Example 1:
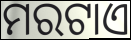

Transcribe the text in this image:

ମରଟାଏ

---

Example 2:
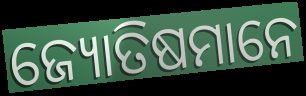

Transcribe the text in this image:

ଜ୍ୟୋତିଷମାନେ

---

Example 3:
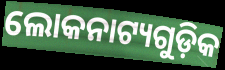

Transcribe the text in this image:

ଲୋକନାଟ୍ୟଗୁଡ଼ିକ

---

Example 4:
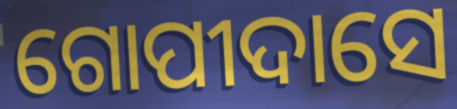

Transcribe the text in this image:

ଗୋପୀଦାସେ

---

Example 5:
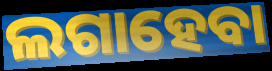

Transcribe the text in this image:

ଲଗାହେବା